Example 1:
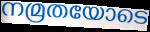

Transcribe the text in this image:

നമ്രതയോടെ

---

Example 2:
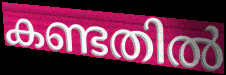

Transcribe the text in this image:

കണ്ടതിൽ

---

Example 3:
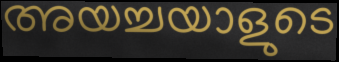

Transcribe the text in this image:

അയച്ചയാളുടെ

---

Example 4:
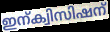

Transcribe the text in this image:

ഇന്ക്വിസിഷന്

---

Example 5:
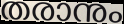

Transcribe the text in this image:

തരാനും